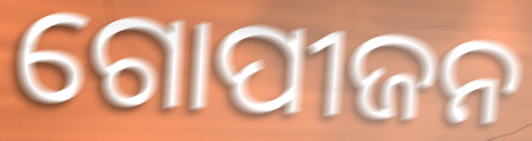
ଗୋପୀଜନ